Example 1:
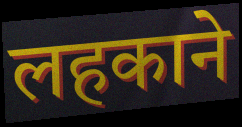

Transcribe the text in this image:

लहकाने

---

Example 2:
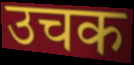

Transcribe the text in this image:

उचक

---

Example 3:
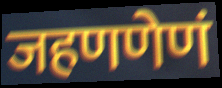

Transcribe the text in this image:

जहणणेणं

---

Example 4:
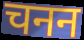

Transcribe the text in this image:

चनन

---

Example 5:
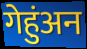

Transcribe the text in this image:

गेहुंअन